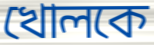
খোলকে